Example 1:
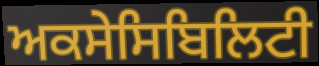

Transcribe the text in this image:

ਅਕਸੇਸਿਬਿਲਿਟੀ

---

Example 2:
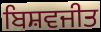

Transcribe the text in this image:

ਬਿਸ਼ਵਜੀਤ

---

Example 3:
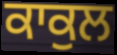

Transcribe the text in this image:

ਕਾਕੁਲ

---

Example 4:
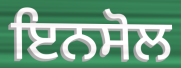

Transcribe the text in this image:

ਇਨਸੋਲ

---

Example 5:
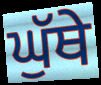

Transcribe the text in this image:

ਘੁੱਥੇ